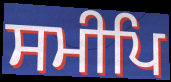
ਸਮੀਪਿ